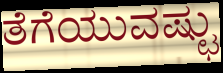
ತೆಗೆಯುವಷ್ಟು